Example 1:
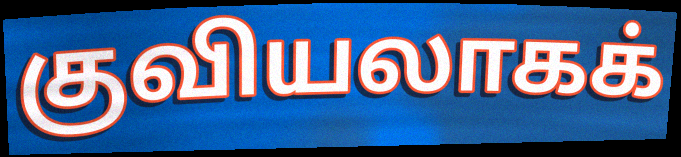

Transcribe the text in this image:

குவியலாகக்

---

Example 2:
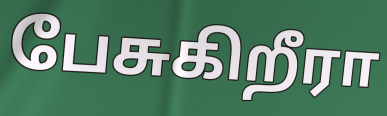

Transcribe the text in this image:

பேசுகிறீரா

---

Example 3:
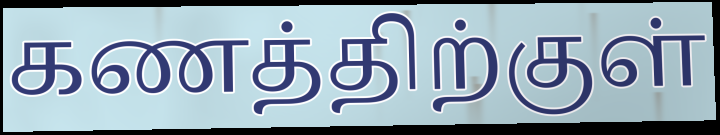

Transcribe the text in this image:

கணத்திற்குள்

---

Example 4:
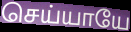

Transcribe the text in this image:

செய்யாயே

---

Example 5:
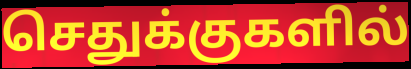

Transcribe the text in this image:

செதுக்குகளில்